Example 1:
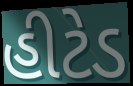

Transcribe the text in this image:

હીટેડ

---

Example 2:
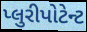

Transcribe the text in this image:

પ્લુરીપોટેન્ટ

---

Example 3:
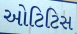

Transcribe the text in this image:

ઓટિટિસ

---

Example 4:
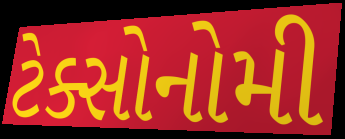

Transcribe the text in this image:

ટેક્સોનોમી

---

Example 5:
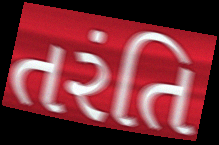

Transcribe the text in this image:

તરંતિ